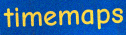
timemaps